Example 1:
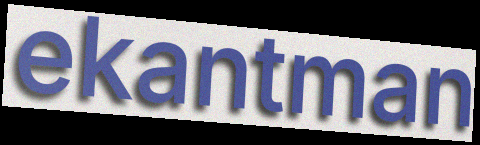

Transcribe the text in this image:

ekantman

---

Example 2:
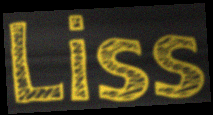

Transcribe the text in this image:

Liss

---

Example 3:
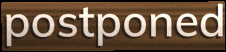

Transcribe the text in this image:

postponed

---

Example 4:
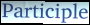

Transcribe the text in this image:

Participle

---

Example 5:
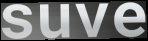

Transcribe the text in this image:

suve